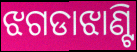
ଝଗଡାଝାଣ୍ଟି